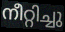
നീറ്റിച്ചു